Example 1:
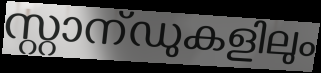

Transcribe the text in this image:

സ്റ്റാന്ഡുകളിലും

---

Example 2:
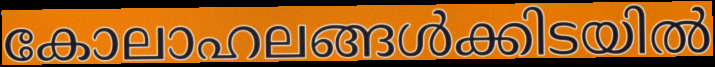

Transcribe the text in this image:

കോലാഹലങ്ങൾക്കിടയിൽ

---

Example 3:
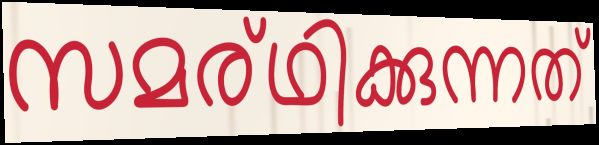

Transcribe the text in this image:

സമര്ഥിക്കുന്നത്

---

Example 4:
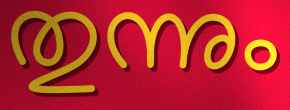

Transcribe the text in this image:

തുന്നും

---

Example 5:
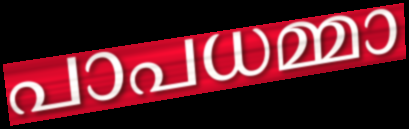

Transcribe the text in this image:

പാപധമ്മാ